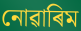
নোৱাৰিম